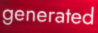
generated